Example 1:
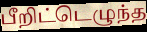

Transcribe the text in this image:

பீறிட்டெழுந்த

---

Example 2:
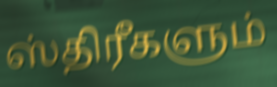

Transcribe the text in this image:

ஸ்திரீகளும்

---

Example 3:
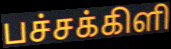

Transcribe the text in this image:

பச்சக்கிளி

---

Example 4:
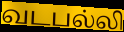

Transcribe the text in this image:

வடபல்லி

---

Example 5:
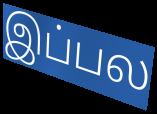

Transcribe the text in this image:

இப்பல